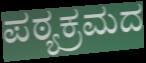
ಪಠ್ಯಕ್ರಮದ